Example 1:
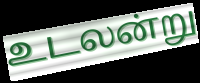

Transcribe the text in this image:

உடலன்று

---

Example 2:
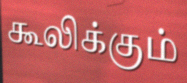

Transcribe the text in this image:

கூலிக்கும்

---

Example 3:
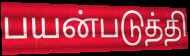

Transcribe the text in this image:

பயன்படுத்தி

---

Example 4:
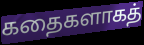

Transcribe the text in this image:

கதைகளாகத்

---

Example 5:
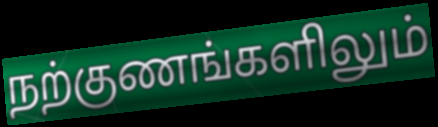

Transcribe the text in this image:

நற்குணங்களிலும்